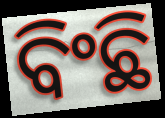
ବିଂଛି